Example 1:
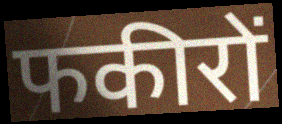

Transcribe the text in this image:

फकीरों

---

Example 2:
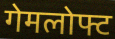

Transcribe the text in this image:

गेमलोफ्ट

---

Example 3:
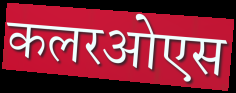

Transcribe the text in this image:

कलरओएस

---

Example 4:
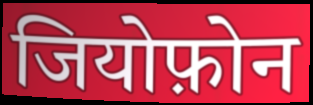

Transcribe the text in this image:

जियोफ़ोन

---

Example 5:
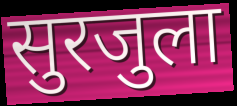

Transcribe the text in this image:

सुरजुला